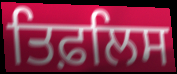
ਤਿਫ਼ਲਿਸ